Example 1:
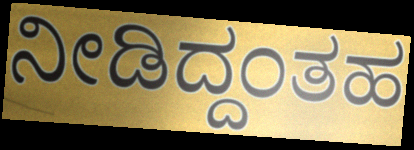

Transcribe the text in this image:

ನೀಡಿದ್ದಂತಹ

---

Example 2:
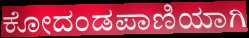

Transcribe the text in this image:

ಕೋದಂಡಪಾಣಿಯಾಗಿ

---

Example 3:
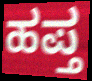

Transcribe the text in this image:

ಹಪ್ತ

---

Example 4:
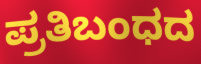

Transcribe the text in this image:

ಪ್ರತಿಬಂಧದ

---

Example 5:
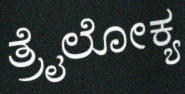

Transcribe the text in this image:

ತ್ರೈಲೋಕ್ಯ